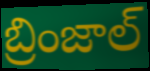
బ్రింజాల్